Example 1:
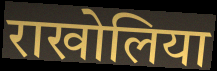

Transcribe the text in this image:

राखोलिया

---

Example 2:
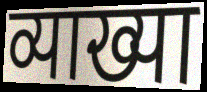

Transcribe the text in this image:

व्याख्‍या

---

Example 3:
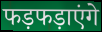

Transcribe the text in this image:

फड़फड़ाएंगे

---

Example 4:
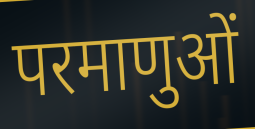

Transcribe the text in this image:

परमाणुओं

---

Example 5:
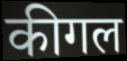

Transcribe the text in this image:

कीगल